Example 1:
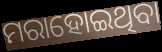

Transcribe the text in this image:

ମରାହୋଇଥିବା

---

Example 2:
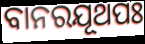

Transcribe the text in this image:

ବାନରଯୂଥପଃ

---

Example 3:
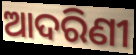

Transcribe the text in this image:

ଆଦରିଣୀ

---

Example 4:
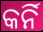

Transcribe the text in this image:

କର୍ନି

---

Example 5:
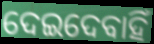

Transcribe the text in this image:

ଦେଇଦେବାହିଁ